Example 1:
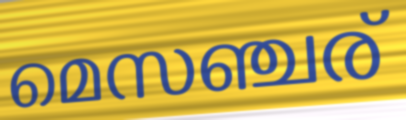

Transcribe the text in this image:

മെസഞ്ചര്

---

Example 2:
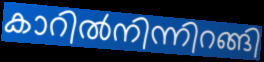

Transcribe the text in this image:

കാറിൽനിന്നിറങ്ങി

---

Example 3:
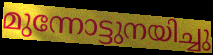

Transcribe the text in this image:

മുന്നോട്ടുനയിച്ചു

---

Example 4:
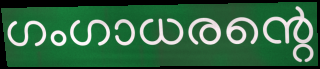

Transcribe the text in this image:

ഗംഗാധരന്റെ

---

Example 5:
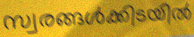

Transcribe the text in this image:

സ്വരങ്ങൾക്കിടയിൽ